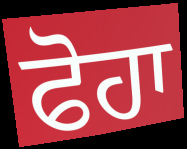
ਫੋਹਾ